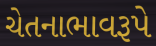
ચેતનાભાવરૂપે